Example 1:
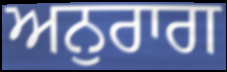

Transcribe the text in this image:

ਅਨੁਰਾਗ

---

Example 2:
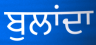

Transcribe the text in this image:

ਬੁਲਾਂਦਾ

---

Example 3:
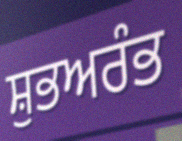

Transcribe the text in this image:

ਸ਼ੁਭਅਰੰਭ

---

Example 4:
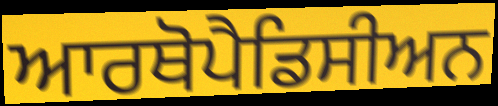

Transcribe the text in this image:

ਆਰਥੋਪੈਡਿਸੀਅਨ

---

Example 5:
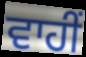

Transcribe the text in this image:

ਵਾਹੀਂ